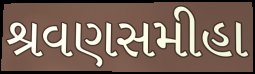
શ્રવણસમીહા